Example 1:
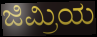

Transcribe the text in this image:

ಜಿಮ್ರಿಯ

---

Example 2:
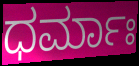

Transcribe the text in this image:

ಧರ್ಮಾಃ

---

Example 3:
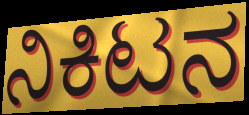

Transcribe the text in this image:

ನಿಕಿಟನ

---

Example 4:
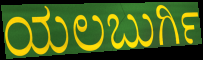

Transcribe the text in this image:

ಯಲಬುರ್ಗಿ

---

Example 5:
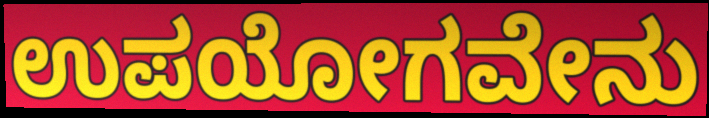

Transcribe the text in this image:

ಉಪಯೋಗವೇನು